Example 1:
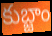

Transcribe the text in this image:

కుబ్జాం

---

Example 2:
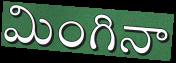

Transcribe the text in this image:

మింగినా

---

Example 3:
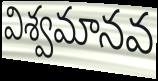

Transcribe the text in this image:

విశ్వమానవ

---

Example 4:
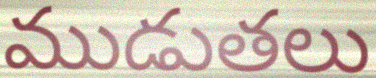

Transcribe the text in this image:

ముడుతలు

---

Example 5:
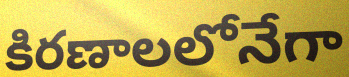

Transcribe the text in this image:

కిరణాలలోనేగా